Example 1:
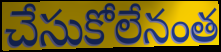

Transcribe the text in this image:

చేసుకోలేనంత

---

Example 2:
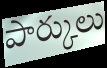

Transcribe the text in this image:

పార్కులు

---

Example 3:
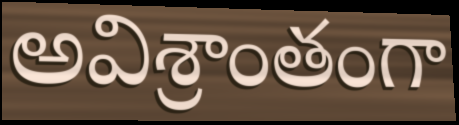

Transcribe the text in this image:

అవిశ్రాంతంగా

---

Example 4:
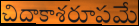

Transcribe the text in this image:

చిదాకాశరూపమే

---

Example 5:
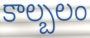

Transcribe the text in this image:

కాల్బలం